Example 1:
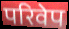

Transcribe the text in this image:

परिवेप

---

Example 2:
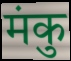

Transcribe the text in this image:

मंकु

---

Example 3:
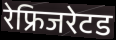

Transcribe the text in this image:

रेफ्रिजरेटड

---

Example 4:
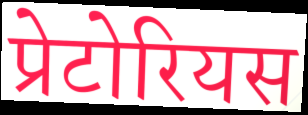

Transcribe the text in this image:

प्रेटोरियस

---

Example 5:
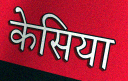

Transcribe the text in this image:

केसिया